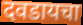
दवडायचा